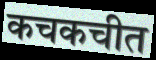
कचकचीत